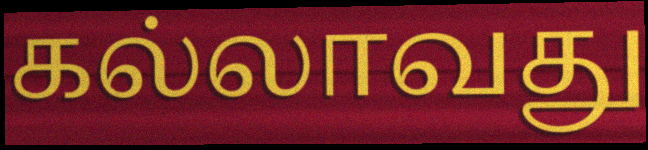
கல்லாவது